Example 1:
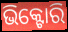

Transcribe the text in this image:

ଭିକ୍ଟୋରି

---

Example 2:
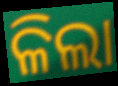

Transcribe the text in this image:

ଳିଲା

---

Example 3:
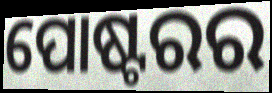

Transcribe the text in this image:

ପୋଷ୍ଟରର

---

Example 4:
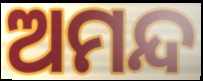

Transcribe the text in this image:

ଅମନ୍ଦ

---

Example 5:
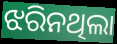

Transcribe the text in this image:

ଝରିନଥିଲା